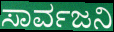
ಸಾರ್ವಜನಿ